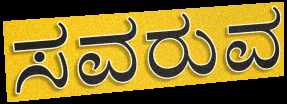
ಸವರುವ